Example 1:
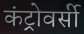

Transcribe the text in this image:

कंट्रोवर्सी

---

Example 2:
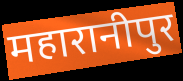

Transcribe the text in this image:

महारानीपुर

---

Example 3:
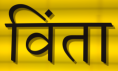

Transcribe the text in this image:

विंता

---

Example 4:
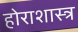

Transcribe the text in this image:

होराशास्त्र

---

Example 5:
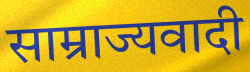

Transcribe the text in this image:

साम्राज्यवादी